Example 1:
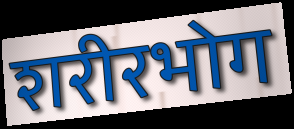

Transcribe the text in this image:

शरीरभोग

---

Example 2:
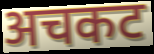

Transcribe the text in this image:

अचकट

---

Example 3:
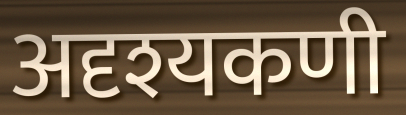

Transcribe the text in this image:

अदृश्यकणी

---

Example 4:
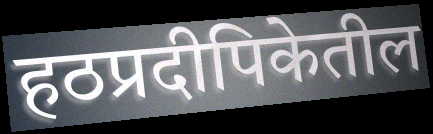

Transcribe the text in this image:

हठप्रदीपिकेतील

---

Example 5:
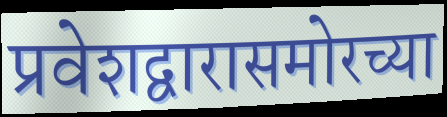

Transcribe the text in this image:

प्रवेशद्वारासमोरच्या